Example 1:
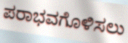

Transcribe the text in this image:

ಪರಾಭವಗೊಳಿಸಲು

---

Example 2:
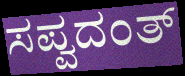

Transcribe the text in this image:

ಸಪ್ವದಂತ್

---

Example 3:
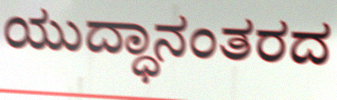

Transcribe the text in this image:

ಯುದ್ಧಾನಂತರದ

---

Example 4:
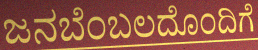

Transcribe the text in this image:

ಜನಬೆಂಬಲದೊಂದಿಗೆ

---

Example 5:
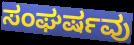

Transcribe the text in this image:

ಸಂಘರ್ಷವು